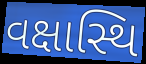
વક્ષાસ્થિ